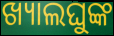
ଖ୍ୟାଲଘୁଙ୍କ